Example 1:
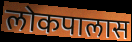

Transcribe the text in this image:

लोकपालास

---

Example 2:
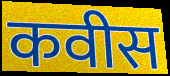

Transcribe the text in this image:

कवीस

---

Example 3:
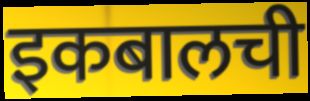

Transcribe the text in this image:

इकबालची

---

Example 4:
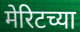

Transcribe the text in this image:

मेरिटच्या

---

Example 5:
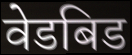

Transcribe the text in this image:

वेडबिड